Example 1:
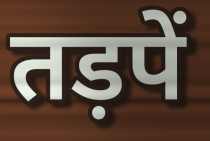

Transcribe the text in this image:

तड़पें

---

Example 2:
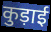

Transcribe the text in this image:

कुड़ाई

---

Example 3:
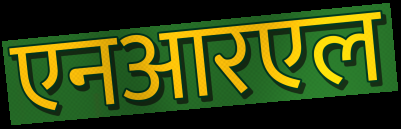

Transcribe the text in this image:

एनआरएल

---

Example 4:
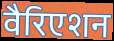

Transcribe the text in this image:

वैरिएशन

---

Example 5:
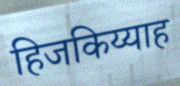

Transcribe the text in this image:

हिजकिय्याह